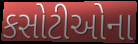
કસોટીઓના